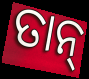
ତାନ୍